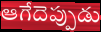
ఆగేదెప్పుడు